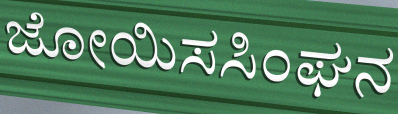
ಜೋಯಿಸಸಿಂಘನ